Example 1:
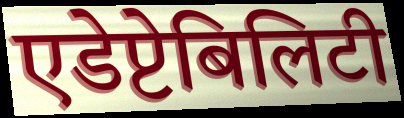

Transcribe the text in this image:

एडेप्टेबिलिटी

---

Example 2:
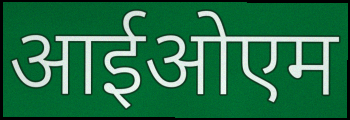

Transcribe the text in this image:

आईओएम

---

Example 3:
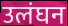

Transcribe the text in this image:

उलंघन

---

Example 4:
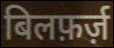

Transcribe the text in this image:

बिलफ़र्ज़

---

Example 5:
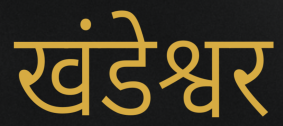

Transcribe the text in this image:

खंडेश्वर